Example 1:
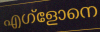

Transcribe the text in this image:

എഗ്ളോനെ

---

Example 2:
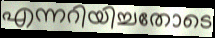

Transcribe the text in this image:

എന്നറിയിച്ചതോടെ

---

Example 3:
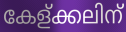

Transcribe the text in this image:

കേള്ക്കലിന്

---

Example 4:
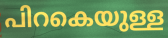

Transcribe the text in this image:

പിറകെയുള്ള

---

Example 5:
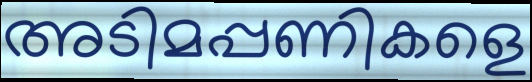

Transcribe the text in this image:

അടിമപ്പണികളെ